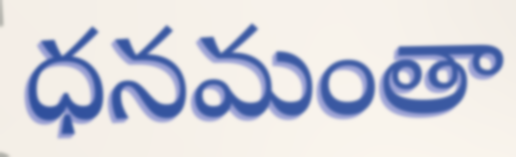
ధనమంతా